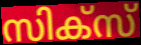
സിക്സ്